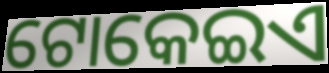
ଟୋକେଇଏ